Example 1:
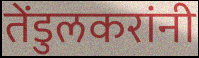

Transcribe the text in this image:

तेंडुलकरांनी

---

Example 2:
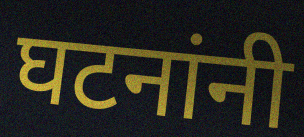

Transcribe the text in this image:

घटनांनी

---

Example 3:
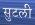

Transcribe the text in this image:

सुटली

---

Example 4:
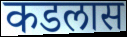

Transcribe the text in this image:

कडलास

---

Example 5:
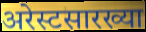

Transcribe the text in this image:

अरेस्टसारख्या